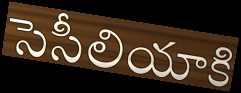
సెసీలియాకి